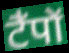
टैंपों